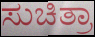
ಸುಚಿತ್ರಾ